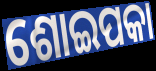
ଶୋଇପକା